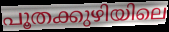
പൂതക്കുഴിയിലെ